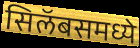
सिलॅबसमध्ये